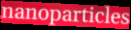
nanoparticles